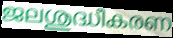
ജലശുദ്ധീകരണ